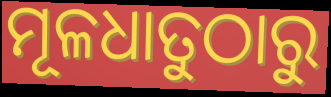
ମୂଳଧାତୁଠାରୁ